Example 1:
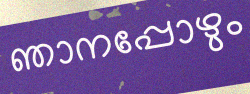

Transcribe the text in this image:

ഞാനപ്പോഴും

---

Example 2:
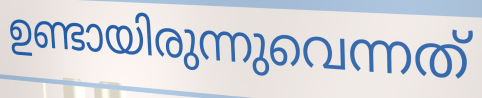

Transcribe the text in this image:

ഉണ്ടായിരുന്നുവെന്നത്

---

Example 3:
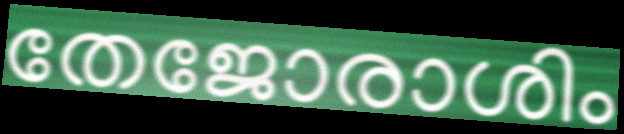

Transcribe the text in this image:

തേജോരാശിം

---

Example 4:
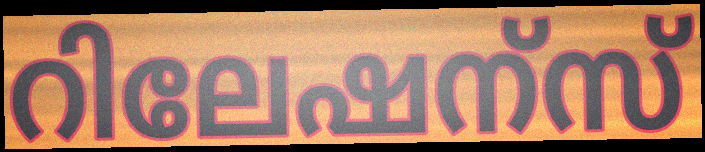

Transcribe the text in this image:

റിലേഷന്സ്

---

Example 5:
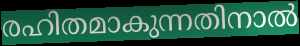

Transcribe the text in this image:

രഹിതമാകുന്നതിനാൽ